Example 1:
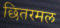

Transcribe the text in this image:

छितरमल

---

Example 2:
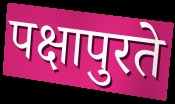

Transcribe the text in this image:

पक्षापुरते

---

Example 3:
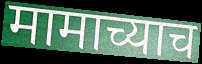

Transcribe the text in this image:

मामाच्याच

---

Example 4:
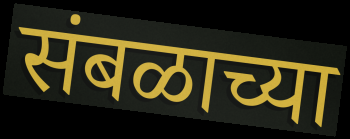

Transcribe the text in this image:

संबळाच्या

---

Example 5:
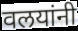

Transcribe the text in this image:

वलयांनी